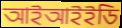
আইআইইডি